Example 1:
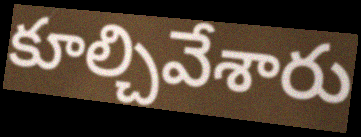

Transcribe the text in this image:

కూల్చివేశారు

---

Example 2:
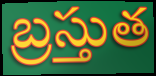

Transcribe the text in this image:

బ్రస్తుత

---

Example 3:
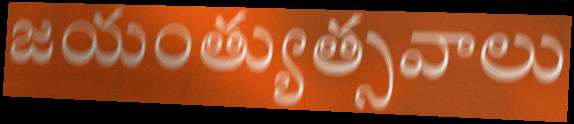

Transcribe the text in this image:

జయంత్యుత్సవాలు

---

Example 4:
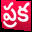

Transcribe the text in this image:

ప్రక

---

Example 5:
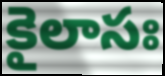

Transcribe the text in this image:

కైలాసః